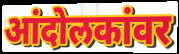
आंदोलकांवर